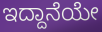
ಇದ್ದಾನೆಯೇ